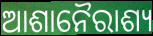
ଆଶାନୈରାଶ୍ୟ